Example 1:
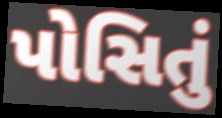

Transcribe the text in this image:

પોસિતું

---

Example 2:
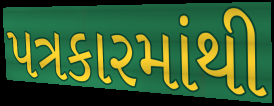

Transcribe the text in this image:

પત્રકારમાંથી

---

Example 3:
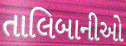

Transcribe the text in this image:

તાલિબાનીઓ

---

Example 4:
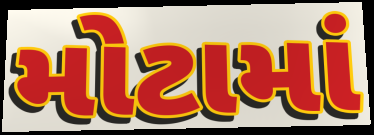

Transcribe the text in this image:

મોટામાં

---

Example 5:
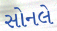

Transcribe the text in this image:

સોનલે